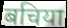
बचिया